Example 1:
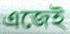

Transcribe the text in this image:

এজেই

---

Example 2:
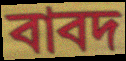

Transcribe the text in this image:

বাবদ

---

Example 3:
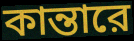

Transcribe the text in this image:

কান্তারে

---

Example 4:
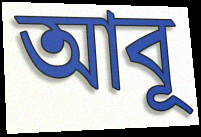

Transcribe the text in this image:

আবূ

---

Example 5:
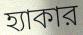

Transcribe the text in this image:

হ্যাকার